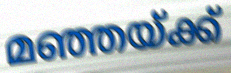
മഞ്ഞയ്ക്ക്